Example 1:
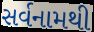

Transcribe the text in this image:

સર્વનામથી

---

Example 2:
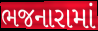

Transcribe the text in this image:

ભજનારામાં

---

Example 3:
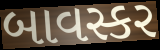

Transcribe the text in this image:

બાવસ્કર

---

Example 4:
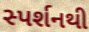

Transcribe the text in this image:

સ્પર્શનથી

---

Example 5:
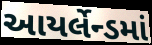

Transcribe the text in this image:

આયર્લેન્ડમાં